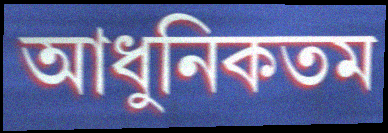
আধুনিকতম